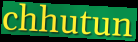
chhutun